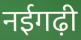
नईगढ़ी